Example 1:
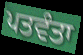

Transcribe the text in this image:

ਪਤਵੰਤਾ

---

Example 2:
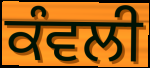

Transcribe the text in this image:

ਕੰਵਲੀ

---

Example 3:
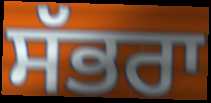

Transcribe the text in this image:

ਸੱਭਰਾ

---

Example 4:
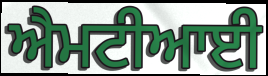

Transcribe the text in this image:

ਐਮਟੀਆਈ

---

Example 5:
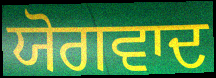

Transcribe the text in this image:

ਯੋਗਵਾਦ